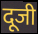
दूजी